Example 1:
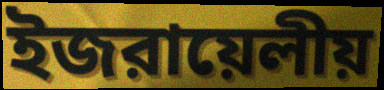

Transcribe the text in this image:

ইজরায়েলীয়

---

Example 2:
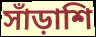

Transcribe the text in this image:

সাঁড়াশি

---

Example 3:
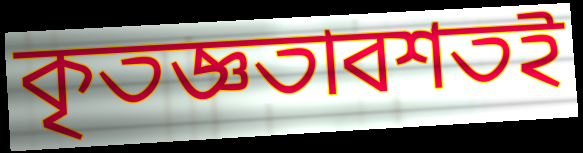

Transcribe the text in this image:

কৃতজ্ঞতাবশতই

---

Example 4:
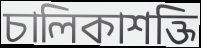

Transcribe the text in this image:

চালিকাশক্তি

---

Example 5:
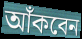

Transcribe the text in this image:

আঁকবেন